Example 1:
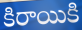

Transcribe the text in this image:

కిరాయికి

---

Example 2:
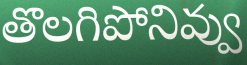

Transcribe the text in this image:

తొలగిపోనివ్వు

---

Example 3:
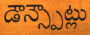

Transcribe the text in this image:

డౌన్స్పౌట్లు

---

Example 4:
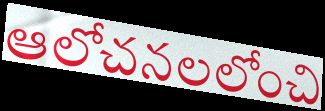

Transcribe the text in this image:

ఆలోచనలలోంచి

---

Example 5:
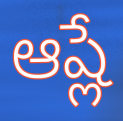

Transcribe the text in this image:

ఆష్లే